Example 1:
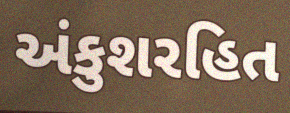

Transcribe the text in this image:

અંકુશરહિત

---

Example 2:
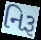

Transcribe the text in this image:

નિરૂ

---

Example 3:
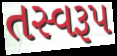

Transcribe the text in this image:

તસ્વરૂપ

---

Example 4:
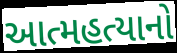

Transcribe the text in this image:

આત્મહત્યાનો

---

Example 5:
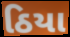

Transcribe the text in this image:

ઠિયા